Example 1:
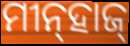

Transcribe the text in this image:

ମୀନ୍‌ହାଜ୍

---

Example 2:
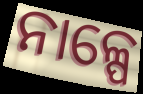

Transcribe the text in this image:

ନାଳ୍ପେ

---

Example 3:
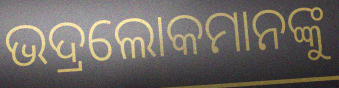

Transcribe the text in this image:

ଭଦ୍ରଲୋକମାନଙ୍କୁ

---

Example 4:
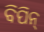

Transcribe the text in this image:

ବିପିନ୍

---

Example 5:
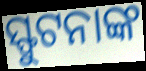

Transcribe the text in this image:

ସ୍ଫୁଟନାଙ୍କ